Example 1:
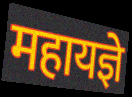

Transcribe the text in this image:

महायज्ञे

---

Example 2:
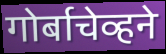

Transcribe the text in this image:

गोर्बाचेव्हने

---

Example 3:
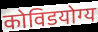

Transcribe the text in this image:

कोविडयोग्य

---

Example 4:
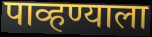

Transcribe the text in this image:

पाव्हण्याला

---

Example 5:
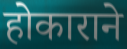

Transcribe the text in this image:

होकाराने